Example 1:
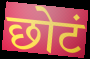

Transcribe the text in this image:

छोटं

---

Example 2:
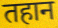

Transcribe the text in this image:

तहान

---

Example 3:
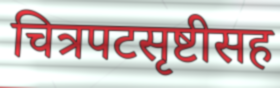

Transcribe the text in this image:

चित्रपटसृष्टीसह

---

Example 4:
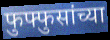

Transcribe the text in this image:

फुफ्फुसांच्या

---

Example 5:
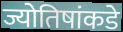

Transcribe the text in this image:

ज्योतिषांकडे